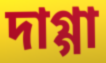
দাগ্গা